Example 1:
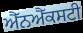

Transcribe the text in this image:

ਐੱਨਐੱਕਸਟੀ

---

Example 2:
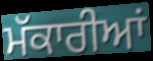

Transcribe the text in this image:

ਮੱਕਾਰੀਆਂ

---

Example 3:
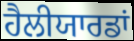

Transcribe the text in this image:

ਹੈਲੀਯਾਰਡਾਂ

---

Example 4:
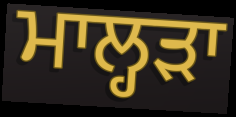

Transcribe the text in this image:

ਮਾਲ੍ਹੜਾ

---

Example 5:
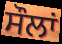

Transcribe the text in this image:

ਸੌਲਾਂ